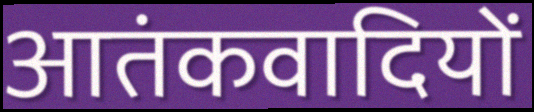
आतंकवादियों